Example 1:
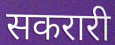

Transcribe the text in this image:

सकरारी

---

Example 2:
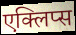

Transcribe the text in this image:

एक्लिप्स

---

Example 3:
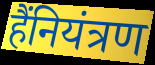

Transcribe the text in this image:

हैंनियंत्रण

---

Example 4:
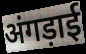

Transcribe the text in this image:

अंगड़ाई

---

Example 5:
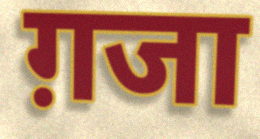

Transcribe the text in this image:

ग़जा